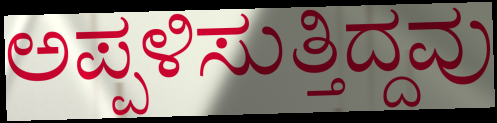
ಅಪ್ಪಳಿಸುತ್ತಿದ್ದವು